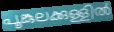
പൂങ്കുലക്കുള്ളിൽ